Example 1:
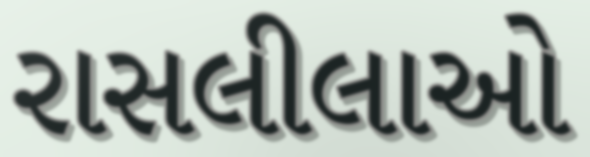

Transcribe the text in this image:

રાસલીલાઓ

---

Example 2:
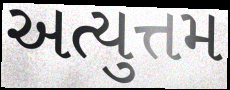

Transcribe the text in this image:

અત્યુત્તમ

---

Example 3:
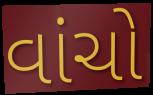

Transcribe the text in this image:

વાંચો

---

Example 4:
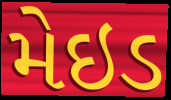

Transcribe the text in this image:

મેઇડ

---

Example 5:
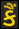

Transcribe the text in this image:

કૈં